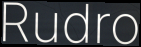
Rudro